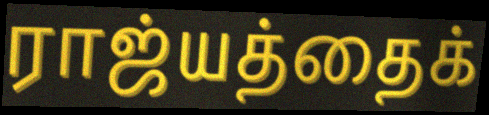
ராஜ்யத்தைக்